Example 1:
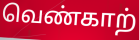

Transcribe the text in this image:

வெண்காற்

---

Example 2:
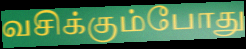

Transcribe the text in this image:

வசிக்கும்போது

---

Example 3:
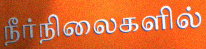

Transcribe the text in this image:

நீர்நிலைகளில்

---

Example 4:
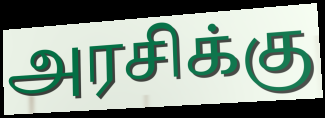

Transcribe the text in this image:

அரசிக்கு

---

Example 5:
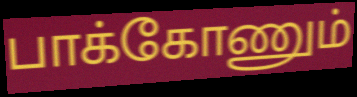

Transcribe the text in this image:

பாக்கோணும்